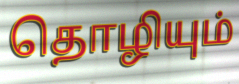
தொழியும்